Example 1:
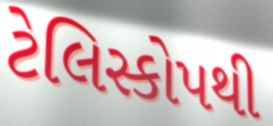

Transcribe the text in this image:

ટેલિસ્કોપથી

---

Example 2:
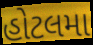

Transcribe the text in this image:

હોટલમા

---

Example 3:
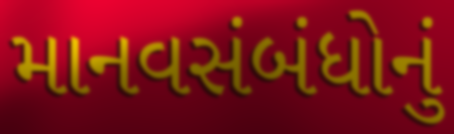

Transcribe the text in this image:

માનવસંબંધોનું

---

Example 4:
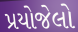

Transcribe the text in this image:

પ્રયોજેલો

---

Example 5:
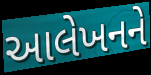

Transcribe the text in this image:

આલેખનને